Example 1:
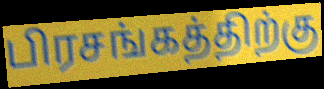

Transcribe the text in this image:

பிரசங்கத்திற்கு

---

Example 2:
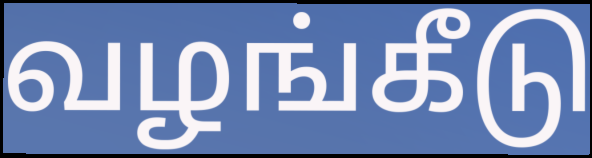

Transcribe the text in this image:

வழங்கீடு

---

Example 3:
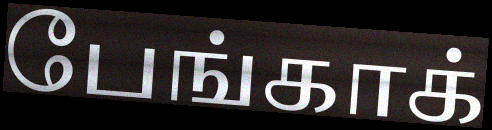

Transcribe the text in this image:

பேங்காக்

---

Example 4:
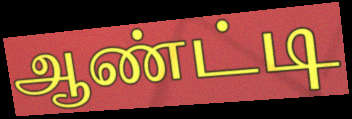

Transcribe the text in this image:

ஆண்ட்டி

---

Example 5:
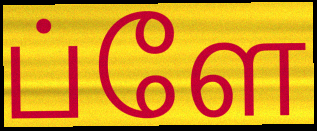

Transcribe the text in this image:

ப்ளே